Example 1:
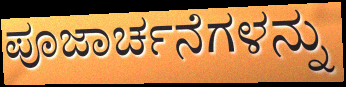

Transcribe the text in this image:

ಪೂಜಾರ್ಚನೆಗಳನ್ನು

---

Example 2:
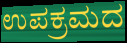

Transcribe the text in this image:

ಉಪಕ್ರಮದ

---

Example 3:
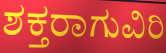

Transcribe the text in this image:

ಶಕ್ತರಾಗುವಿರಿ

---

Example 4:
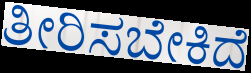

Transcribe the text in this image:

ತೀರಿಸಬೇಕಿದೆ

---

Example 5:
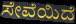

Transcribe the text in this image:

ಸೇವೆಯಿದೆ